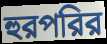
হুরপরির